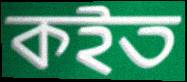
কইত